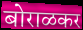
बोराळकर